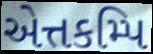
એત્તકમ્પિ